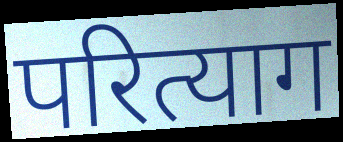
परित्याग